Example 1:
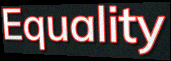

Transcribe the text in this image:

Equality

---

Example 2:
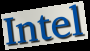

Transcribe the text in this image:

Intel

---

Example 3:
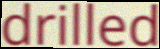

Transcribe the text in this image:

drilled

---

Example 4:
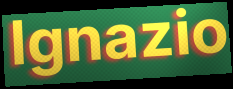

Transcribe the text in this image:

Ignazio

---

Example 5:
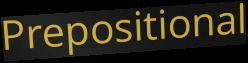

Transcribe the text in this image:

Prepositional